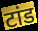
टांड